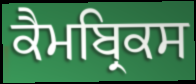
ਕੈਮਬ੍ਰਿਕਸ